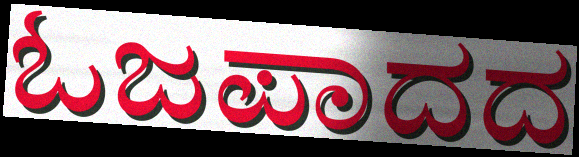
ಓಜಪಾದದ